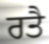
ਰਤੈ